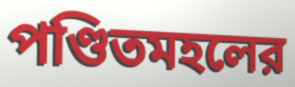
পণ্ডিতমহলের